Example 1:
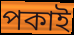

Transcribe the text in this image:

পকাই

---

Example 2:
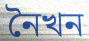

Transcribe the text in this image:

নৈখন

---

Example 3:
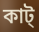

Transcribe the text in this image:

কাট্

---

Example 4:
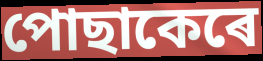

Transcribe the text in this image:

পোছাকেৰে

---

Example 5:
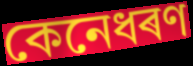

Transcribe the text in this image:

কেনেধৰণ